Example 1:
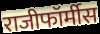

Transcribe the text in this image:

राजीफॉर्मीस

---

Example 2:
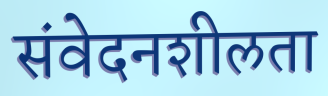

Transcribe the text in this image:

संवेदनशीलता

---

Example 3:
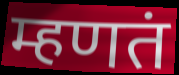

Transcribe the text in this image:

म्हणतं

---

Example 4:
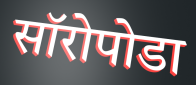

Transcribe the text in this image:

सॉरोपोडा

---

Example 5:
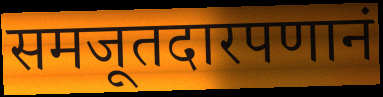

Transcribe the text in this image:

समजूतदारपणानं